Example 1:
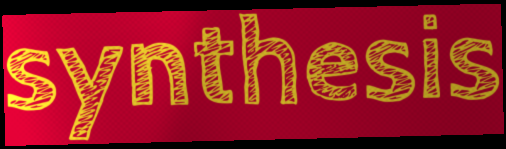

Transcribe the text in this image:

synthesis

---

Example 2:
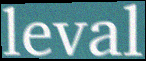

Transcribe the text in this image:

leval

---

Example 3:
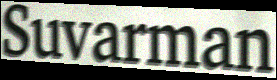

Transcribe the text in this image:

Suvarman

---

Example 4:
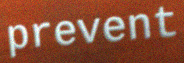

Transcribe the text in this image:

prevent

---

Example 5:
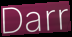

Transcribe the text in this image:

Darr